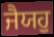
ਜੈਯਹੁ